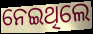
ନେଇଥିଲେ